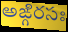
అఙ్గిరసః